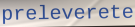
preleverete